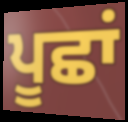
ਪੂਛਾਂ